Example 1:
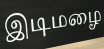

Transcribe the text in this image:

இடிமழை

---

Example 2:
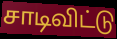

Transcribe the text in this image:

சாடிவிட்டு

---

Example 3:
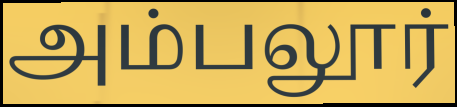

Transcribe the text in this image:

அம்பலூர்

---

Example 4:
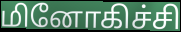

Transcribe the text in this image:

மினோகிச்சி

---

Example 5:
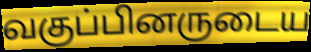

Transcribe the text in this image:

வகுப்பினருடைய